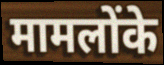
मामलोंके